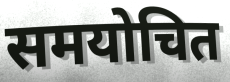
समयोचित